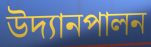
উদ্যানপালন